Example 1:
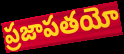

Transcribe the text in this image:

ప్రజాపతయో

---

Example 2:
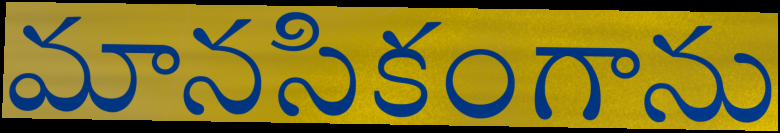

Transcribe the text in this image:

మానసికంగాను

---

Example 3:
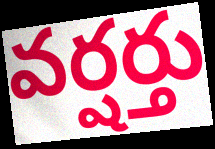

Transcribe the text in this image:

వర్షర్తు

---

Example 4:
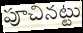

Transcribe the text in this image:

పూచినట్టు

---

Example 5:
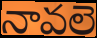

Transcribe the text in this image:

నావలె